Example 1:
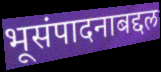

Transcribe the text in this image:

भूसंपादनाबद्दल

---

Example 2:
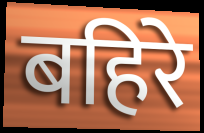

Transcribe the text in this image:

बहिरे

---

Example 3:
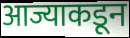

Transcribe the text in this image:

आज्याकडून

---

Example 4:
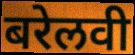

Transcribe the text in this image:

बरेलवी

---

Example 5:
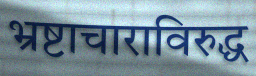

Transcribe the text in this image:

भ्रष्टाचाराविरुद्ध